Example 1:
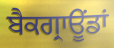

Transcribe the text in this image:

ਬੈਕਗ੍ਰਾਊਂਡਾਂ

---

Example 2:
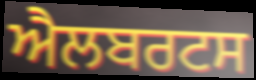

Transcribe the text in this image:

ਐਲਬਰਟਸ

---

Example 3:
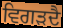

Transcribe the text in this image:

ਵਿਗੜਦੈ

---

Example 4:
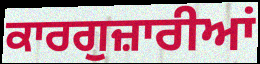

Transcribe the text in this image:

ਕਾਰਗੁਜ਼ਾਰੀਆਂ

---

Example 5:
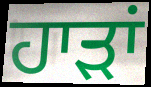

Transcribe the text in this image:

ਹਾੜਾਂ